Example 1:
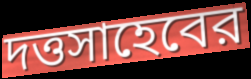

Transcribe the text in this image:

দত্তসাহেবের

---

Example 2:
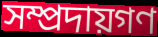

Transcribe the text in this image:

সম্প্রদায়গণ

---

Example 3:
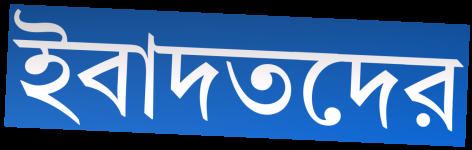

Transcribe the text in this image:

ইবাদতদের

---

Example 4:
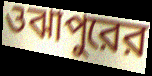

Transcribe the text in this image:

ওঝাপুরের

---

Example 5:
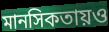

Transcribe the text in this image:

মানসিকতায়ও